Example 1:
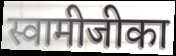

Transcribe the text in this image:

स्वामीजीका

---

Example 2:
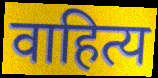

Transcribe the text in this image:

वाहित्य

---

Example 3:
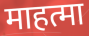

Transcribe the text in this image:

माहत्मा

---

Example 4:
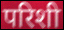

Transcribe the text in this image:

परिशी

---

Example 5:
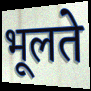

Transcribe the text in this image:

भूलते